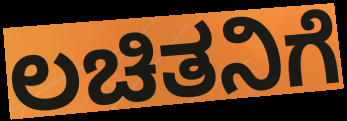
ಲಚಿತನಿಗೆ